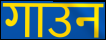
गाउन